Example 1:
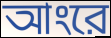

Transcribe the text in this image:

আংরে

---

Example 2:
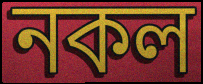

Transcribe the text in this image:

নকল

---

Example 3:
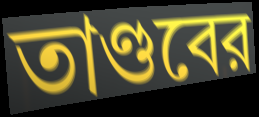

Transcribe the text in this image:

তাণ্ডবের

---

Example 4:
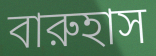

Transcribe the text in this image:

বারুহাস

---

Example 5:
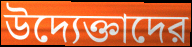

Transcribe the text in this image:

উদ্যেক্তাদের